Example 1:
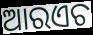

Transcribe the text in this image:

ଆରଏଚ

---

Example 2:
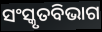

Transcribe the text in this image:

ସଂସ୍କୃତବିଭାଗ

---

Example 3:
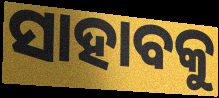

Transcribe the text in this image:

ସାହାବକୁ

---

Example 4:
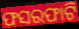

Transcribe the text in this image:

ଫସରଫାଟି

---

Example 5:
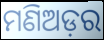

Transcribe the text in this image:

ମଣିଅଡ଼ର